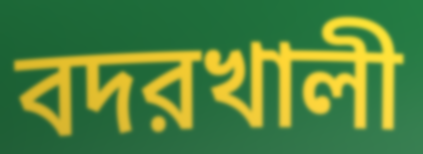
বদরখালী